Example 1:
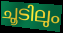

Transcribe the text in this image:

ചൂടിലും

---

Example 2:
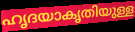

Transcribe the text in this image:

ഹൃദയാകൃതിയുള്ള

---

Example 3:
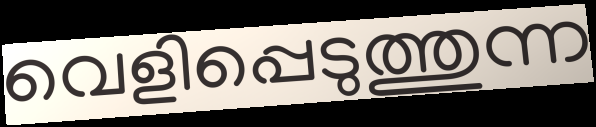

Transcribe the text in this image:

വെളിപ്പെടുത്തുന്ന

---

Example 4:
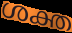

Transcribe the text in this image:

ശക്ത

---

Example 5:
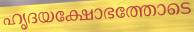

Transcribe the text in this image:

ഹൃദയക്ഷോഭത്തോടെ